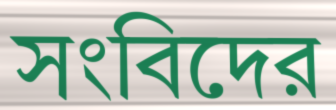
সংবিদের